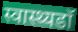
स्वास्थ्यडॉ